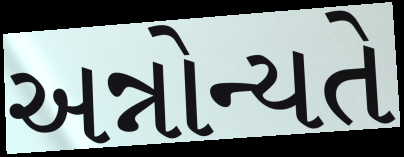
અન્નોન્યતે